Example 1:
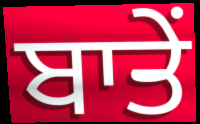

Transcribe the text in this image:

ਬਾਤੇਂ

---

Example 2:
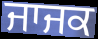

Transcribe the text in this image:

ਜਾਜਕ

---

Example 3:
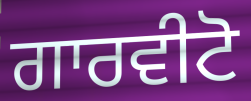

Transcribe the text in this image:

ਗਾਰਵੀਟੋ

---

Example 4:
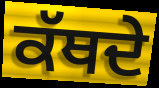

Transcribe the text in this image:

ਕੱਥਦੇ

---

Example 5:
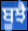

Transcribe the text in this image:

ਬੂਝੈ